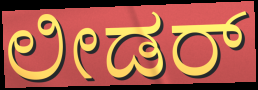
ಲೀಡರ್